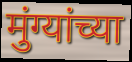
मुंग्यांच्या